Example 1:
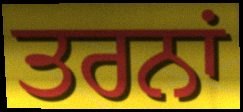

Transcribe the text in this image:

ਤਰਨਾਂ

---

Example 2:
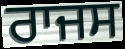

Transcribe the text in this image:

ਰਾਜਸ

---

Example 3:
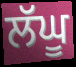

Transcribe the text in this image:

ਲੱਘੂ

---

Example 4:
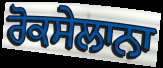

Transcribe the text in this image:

ਰੋਕਸੇਲਾਨਾ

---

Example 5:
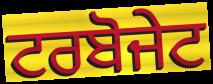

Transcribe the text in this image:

ਟਰਬੋਜੇਟ